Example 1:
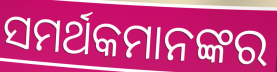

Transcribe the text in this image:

ସମର୍ଥକମାନଙ୍କର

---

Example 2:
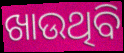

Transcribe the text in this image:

ଖାଉଥିବି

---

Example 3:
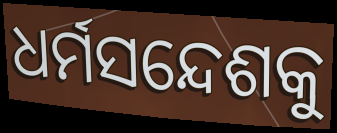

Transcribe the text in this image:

ଧର୍ମସନ୍ଦେଶକୁ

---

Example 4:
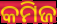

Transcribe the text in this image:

କମିଜ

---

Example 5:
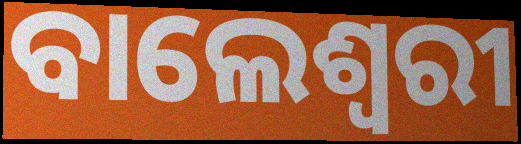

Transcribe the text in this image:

ବାଲେଶ୍ୱରୀ